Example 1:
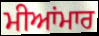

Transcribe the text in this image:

ਮੀਆਂਮਾਰ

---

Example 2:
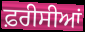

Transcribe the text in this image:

ਫ਼ਰੀਸੀਆਂ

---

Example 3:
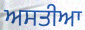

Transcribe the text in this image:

ਅਸਤੀਆ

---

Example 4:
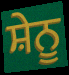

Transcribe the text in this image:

ਸ਼ੇਨੂ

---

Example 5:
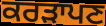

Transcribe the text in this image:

ਕਰੜਾਪਣ